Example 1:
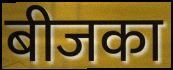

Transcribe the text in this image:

बीजका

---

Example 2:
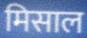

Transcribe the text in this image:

मिसाल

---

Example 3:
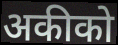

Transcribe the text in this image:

अकीको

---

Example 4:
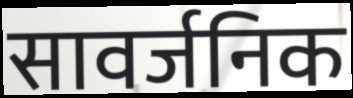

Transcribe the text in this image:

सावर्जनिक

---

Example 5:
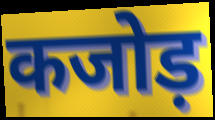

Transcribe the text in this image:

कजोड़